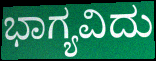
ಭಾಗ್ಯವಿದು